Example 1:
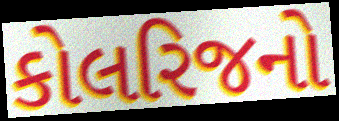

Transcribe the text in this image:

કોલરિજનો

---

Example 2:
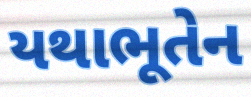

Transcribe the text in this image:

યથાભૂતેન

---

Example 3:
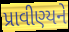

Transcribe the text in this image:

પ્રાવીણ્યને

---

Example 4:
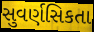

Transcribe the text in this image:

સુવર્ણસિકતા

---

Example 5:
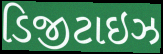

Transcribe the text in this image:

ડિજીટાઇઝ